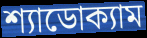
শ্যাডোক্যাম